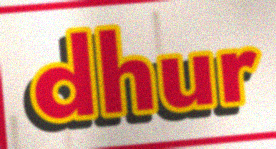
dhur